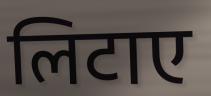
लिटाए